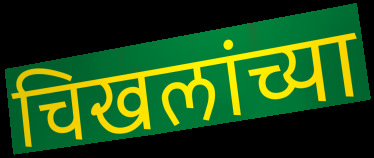
चिखलांच्या